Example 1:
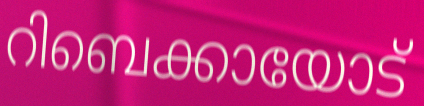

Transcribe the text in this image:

റിബെക്കായോട്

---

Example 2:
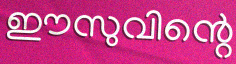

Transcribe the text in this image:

ഈസുവിന്റെ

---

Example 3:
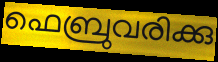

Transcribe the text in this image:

ഫെബ്രുവരിക്കു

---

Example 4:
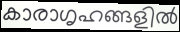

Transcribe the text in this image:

കാരാഗൃഹങ്ങളിൽ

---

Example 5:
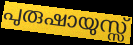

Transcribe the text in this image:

പുരുഷായുസ്സ്